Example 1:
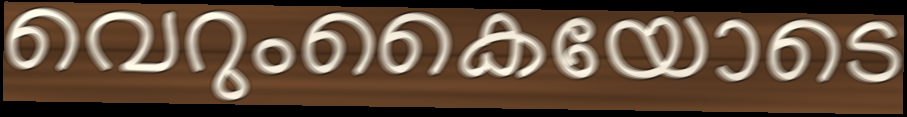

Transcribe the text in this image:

വെറുംകൈയോടെ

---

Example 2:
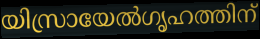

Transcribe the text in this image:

യിസ്രായേൽഗൃഹത്തിന്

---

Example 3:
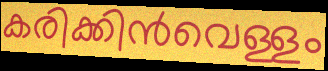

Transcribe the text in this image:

കരിക്കിൻവെള്ളം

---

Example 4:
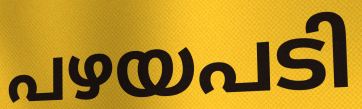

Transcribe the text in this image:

പഴയപടി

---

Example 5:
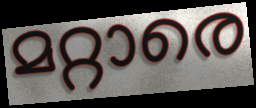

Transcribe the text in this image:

മറ്റാരെ